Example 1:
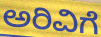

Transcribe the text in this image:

ಅರಿವಿಗೆ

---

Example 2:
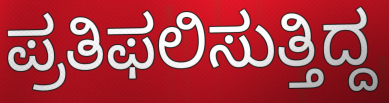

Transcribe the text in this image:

ಪ್ರತಿಫಲಿಸುತ್ತಿದ್ದ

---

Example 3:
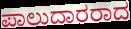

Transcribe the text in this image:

ಪಾಲುದಾರರಾದ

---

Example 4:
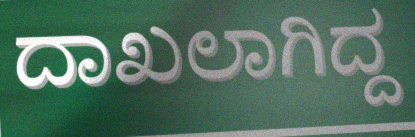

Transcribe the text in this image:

ದಾಖಲಾಗಿದ್ದ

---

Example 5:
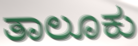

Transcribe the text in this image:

ತಾಲೂಕು